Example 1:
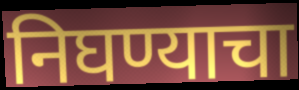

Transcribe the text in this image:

निघण्याचा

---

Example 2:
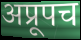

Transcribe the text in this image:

अप्रूपच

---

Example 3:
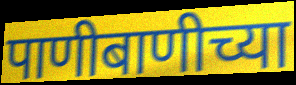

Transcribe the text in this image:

पाणीबाणीच्या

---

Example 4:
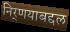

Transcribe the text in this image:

निर्णयाबद्दल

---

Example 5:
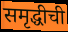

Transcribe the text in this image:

समृद्धीची